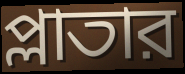
প্লাতার